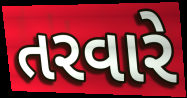
તરવારે